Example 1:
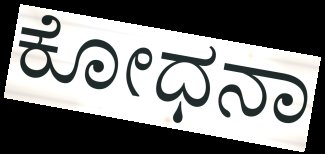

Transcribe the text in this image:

ಕೋಧನಾ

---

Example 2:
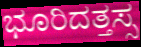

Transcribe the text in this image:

ಭೂರಿದತ್ತಸ್ಸ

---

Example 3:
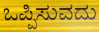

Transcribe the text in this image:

ಒಪ್ಪಿಸುವದು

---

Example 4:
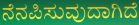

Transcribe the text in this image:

ನೆನಪಿಸುವುದಾಗಿದೆ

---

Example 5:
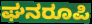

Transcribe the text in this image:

ಘನರೂಪಿ